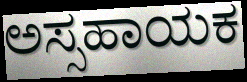
ಅಸ್ಸಹಾಯಕ